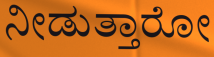
ನೀಡುತ್ತಾರೋ